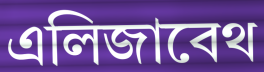
এলিজাবেথ